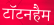
टॉटनहैम